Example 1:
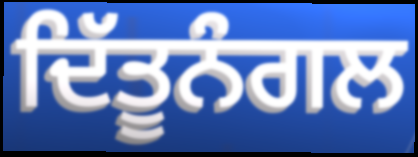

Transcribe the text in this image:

ਦਿੱਤੂਨੰਗਲ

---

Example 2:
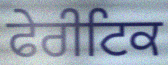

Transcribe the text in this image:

ਫੇਰੀਟਿਕ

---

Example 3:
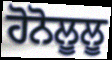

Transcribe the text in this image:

ਹੋਨੋਲੂਲੂ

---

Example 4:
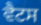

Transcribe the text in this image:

ਵੈਟਸ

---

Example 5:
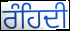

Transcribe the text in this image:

ਰੰਹਿਦੀ